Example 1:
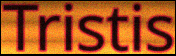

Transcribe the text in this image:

Tristis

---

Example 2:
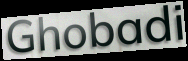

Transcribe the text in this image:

Ghobadi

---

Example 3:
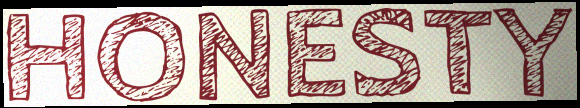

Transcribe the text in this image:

HONESTY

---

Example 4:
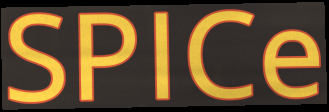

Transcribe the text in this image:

SPICe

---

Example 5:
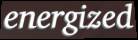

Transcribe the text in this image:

energized